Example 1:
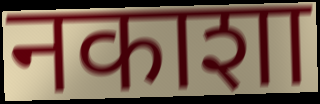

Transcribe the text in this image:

नकाशा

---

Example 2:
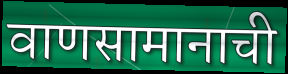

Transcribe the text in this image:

वाणसामानाची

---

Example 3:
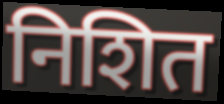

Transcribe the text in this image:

निशित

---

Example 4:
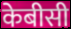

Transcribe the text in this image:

केबीसी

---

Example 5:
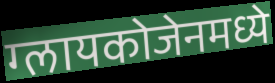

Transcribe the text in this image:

ग्लायकोजेनमध्ये